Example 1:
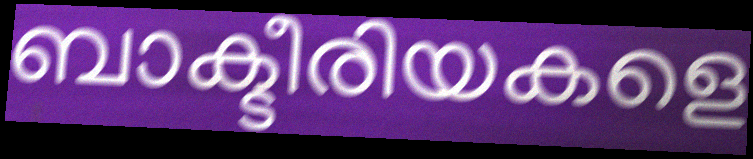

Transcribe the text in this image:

ബാക്ടീരിയകളെ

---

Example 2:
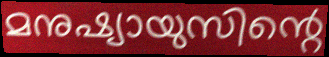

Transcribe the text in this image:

മനുഷ്യായുസിന്റെ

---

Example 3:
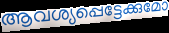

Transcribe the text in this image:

ആവശ്യപ്പെട്ടേക്കുമോ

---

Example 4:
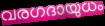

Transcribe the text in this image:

വരഗദായുധം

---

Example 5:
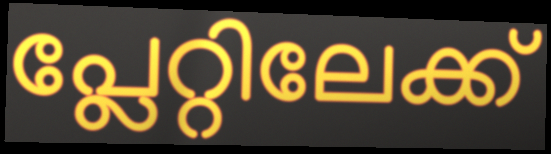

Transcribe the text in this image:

പ്ലേറ്റിലേക്ക്